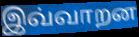
இவ்வாறன